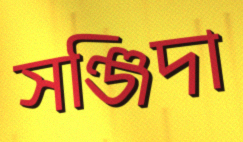
সঞ্জিদা